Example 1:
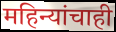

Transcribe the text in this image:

महिन्यांचाही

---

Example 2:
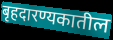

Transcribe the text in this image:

बृहदारण्यकातील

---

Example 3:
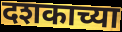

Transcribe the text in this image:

दशकाच्या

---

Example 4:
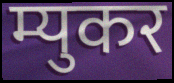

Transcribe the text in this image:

म्युकर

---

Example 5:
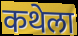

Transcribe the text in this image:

कथेला